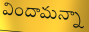
విందామన్నా